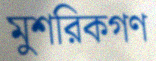
মুশরিকগণ